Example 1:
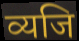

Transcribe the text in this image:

व्यजि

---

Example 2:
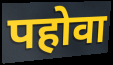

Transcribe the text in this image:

पहोवा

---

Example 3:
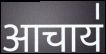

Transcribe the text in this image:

आचाय॑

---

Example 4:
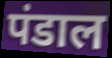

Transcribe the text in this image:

पंडाल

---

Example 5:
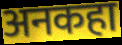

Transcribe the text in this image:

अनकहा